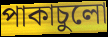
পাকাচুলো